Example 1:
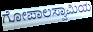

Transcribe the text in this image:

ಗೋಪಾಲಸ್ವಾಮಿಯ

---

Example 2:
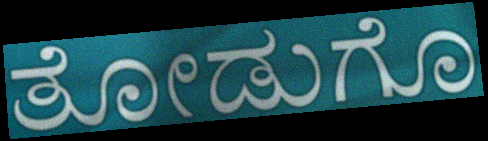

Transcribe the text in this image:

ತೋಡುಗೊ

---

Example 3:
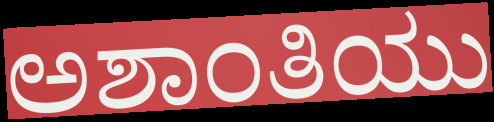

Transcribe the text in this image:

ಅಶಾಂತಿಯು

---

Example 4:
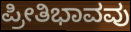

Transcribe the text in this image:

ಪ್ರೀತಿಭಾವವು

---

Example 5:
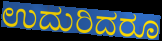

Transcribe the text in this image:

ಉದುರಿದರೂ